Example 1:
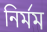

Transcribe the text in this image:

নিৰ্মম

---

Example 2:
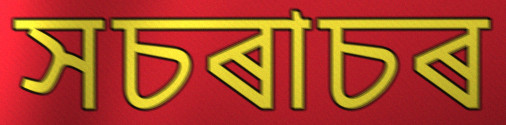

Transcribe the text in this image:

সচৰাচৰ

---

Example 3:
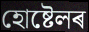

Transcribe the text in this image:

হোষ্টেলৰ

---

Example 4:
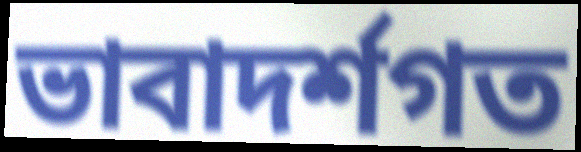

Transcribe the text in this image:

ভাবাদৰ্শগত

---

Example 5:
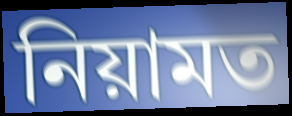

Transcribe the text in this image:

নিয়ামত